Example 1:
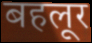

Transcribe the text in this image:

बहलूर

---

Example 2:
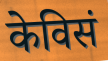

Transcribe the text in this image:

केविसं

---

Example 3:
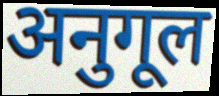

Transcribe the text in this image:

अनुगूल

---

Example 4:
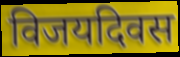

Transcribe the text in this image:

विजयदिवस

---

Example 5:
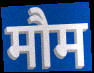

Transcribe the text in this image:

मौम